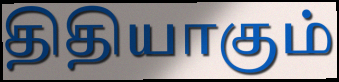
திதியாகும்